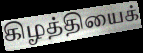
கிழத்தியைக்